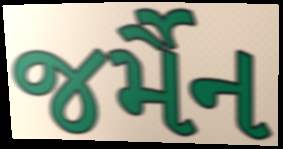
જર્મૈન